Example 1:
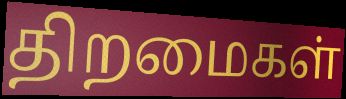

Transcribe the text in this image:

திறமைகள்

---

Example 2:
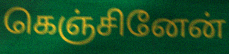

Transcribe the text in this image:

கெஞ்சினேன்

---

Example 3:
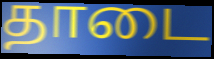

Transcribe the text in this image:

தாடை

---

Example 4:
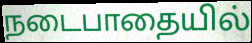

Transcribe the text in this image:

நடைபாதையில்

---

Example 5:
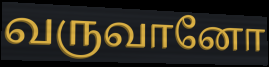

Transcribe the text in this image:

வருவானோ